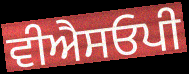
ਵੀਐਸਓਪੀ